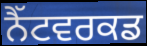
ਨੈੱਟਵਰਕਡ